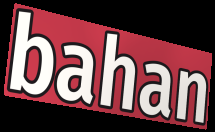
bahan